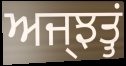
ਅਜ੍ਝਤ੍ਤਂ